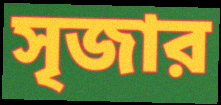
সৃজার